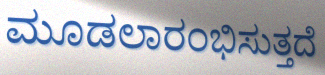
ಮೂಡಲಾರಂಭಿಸುತ್ತದೆ